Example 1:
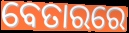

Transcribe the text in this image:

ବେତାରରେ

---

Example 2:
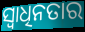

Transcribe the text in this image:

ସ୍ୱାଧିନତାର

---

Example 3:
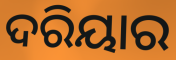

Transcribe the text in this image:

ଦରିୟାର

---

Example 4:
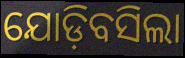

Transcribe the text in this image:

ଯୋଡ଼ିବସିଲା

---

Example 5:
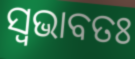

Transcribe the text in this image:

ସ୍ଵଭାବତଃ